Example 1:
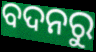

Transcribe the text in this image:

ବଦନରୁ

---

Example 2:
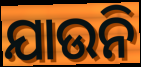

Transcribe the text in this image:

ଯାଉନି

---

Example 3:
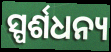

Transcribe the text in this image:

ସ୍ପର୍ଶଧନ୍ୟ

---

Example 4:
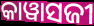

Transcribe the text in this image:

କାୱାସଜୀ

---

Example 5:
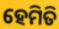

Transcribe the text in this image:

ହେମିତି